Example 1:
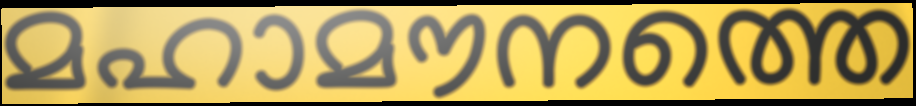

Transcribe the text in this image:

മഹാമൗനത്തെ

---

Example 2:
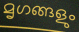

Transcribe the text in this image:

മൃഗങ്ങളും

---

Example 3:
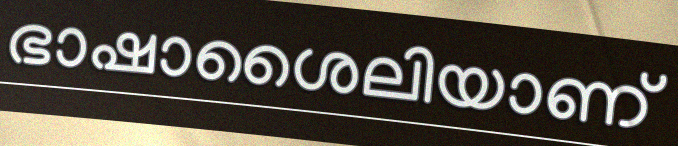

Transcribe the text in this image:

ഭാഷാശൈലിയാണ്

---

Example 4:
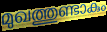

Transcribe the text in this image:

മുഖത്തുണ്ടാകും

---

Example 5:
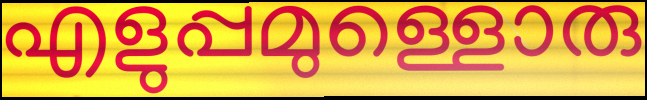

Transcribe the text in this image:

എളുപ്പമുള്ളൊരു